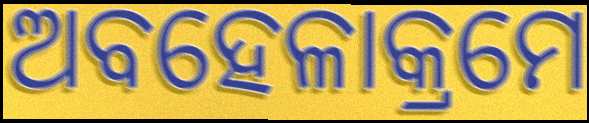
ଅବହେଳାକ୍ରମେ